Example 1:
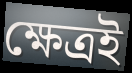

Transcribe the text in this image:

ক্ষেত্রই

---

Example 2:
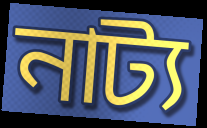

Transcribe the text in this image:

নাট্য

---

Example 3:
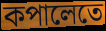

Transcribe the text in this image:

কপালেতে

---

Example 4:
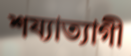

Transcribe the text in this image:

শয্যাত্যাগী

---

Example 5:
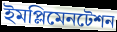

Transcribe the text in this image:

ইমপ্লিমেনটেশন